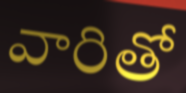
వారితో